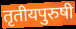
तृतीयपुरुषी